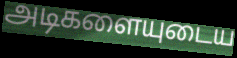
அடிகளையுடைய